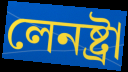
লেনষ্ট্ৰা